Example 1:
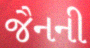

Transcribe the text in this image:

જૈનની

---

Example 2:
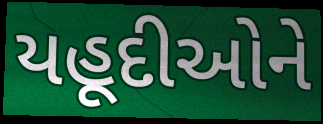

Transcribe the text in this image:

યહૂદીઓને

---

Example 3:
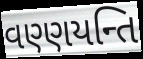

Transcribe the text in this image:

વણ્ણયન્તિ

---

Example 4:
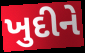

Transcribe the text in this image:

ખુદીને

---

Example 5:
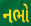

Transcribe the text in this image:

નભો